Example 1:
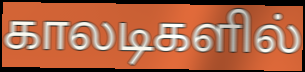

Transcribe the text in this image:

காலடிகளில்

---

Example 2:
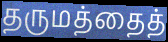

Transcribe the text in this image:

தருமத்தைத்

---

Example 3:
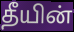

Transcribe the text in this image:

தீயின்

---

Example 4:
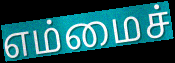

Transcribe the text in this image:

எம்மைச்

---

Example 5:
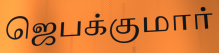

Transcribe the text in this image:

ஜெபக்குமார்